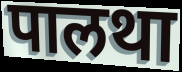
पालथा